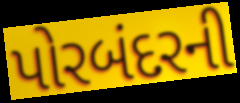
પોરબંદરની